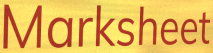
Marksheet